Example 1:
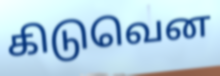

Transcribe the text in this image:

கிடுவென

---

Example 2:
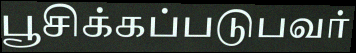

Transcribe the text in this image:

பூசிக்கப்படுபவர்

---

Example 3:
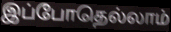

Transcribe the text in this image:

இப்போதெல்லாம்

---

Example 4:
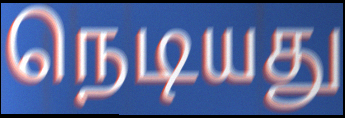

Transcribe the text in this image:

நெடியது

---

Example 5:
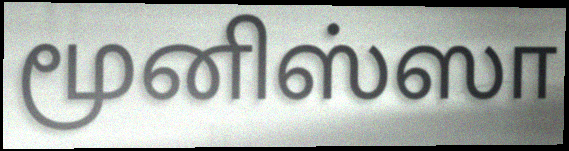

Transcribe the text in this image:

மூனிஸ்ஸா